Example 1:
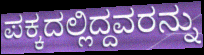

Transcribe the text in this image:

ಪಕ್ಕದಲ್ಲಿದ್ದವರನ್ನು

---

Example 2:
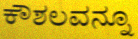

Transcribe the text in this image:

ಕೌಶಲವನ್ನೂ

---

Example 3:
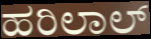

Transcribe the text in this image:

ಹರಿಲಾಲ್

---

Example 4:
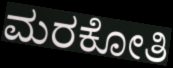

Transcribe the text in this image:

ಮರಕೋತಿ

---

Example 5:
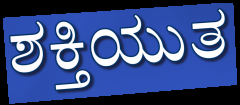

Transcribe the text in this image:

ಶಕ್ತಿಯುತ